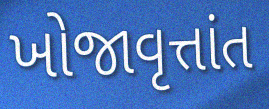
ખોજાવૃત્તાંત